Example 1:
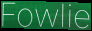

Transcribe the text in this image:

Fowlie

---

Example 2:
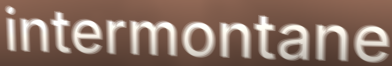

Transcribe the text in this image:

intermontane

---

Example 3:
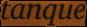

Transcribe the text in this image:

tanque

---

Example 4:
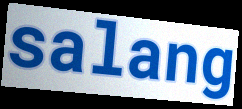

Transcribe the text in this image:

salang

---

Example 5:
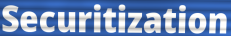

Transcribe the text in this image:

Securitization